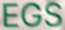
EGS